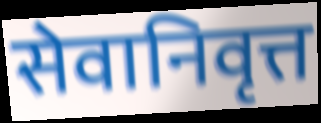
सेवानिवृत्त